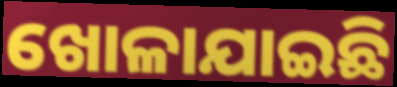
ଖୋଳାଯାଇଛି